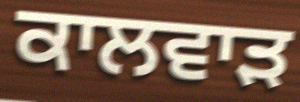
ਕਾਲਵਾੜ